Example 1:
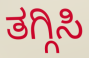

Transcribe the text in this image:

ತಗ್ಗಿಸಿ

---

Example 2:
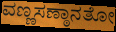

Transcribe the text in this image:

ವಣ್ಣಸಣ್ಠಾನತೋ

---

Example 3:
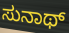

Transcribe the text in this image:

ಸುನಾಥ್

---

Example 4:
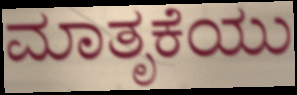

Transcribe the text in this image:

ಮಾತೃಕೆಯು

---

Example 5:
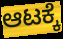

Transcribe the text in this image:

ಆಟಕ್ಕೆ